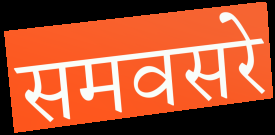
समवसरे